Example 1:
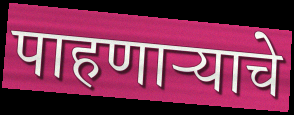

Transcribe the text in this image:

पाहणाऱ्याचे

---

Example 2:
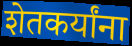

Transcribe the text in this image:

शेतकर्यांना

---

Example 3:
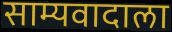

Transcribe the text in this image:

साम्यवादाला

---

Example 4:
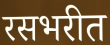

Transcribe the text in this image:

रसभरीत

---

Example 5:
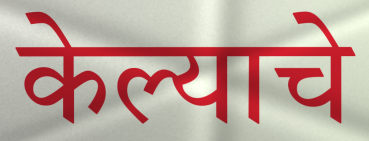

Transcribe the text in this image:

केल्याचे